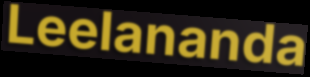
Leelananda